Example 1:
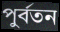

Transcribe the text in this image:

পুর্বতন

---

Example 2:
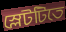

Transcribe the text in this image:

স্লেটটিতে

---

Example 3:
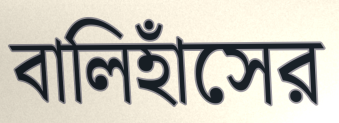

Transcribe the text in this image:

বালিহাঁসের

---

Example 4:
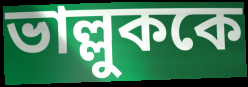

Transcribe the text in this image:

ভাল্লুককে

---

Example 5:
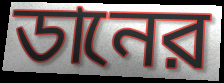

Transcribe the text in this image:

ডানের